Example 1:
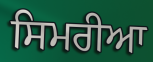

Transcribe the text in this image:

ਸਿਮਰੀਆ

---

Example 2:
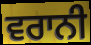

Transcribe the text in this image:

ਵਰਾਨੀ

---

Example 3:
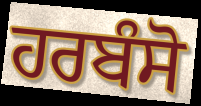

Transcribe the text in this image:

ਹਰਬੰਸੋ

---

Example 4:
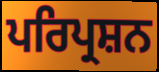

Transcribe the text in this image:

ਪਰਿਪ੍ਰਸ਼ਨ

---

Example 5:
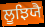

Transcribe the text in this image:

ਲੂਝਿਯੈ